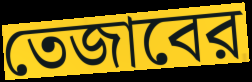
তেজাবের